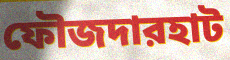
ফৌজদারহাট